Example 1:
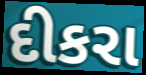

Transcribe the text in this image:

દીકરા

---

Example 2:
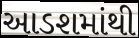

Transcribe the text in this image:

આડશમાંથી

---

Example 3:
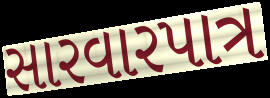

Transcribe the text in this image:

સારવારપાત્ર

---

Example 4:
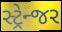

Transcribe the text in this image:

સ્ટ્રેન્જર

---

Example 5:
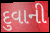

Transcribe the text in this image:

દુવાની